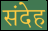
संदेह